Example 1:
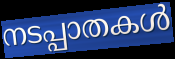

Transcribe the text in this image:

നടപ്പാതകൾ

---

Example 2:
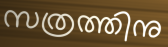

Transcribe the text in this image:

സത്രത്തിനു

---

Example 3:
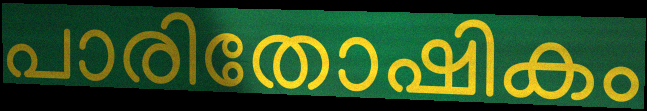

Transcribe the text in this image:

പാരിതോഷികം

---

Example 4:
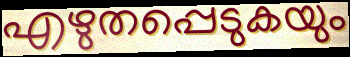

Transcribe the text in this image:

എഴുതപ്പെടുകയും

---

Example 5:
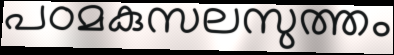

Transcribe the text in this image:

പഠമകുസലസുത്തം